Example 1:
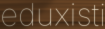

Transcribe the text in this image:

eduxisti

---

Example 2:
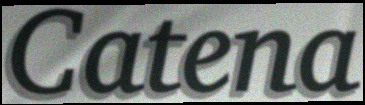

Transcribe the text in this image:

Catena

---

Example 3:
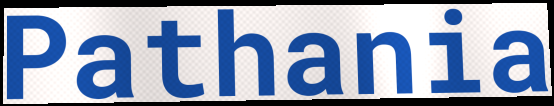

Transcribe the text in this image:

Pathania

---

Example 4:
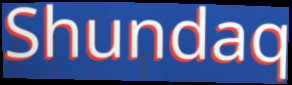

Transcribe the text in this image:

Shundaq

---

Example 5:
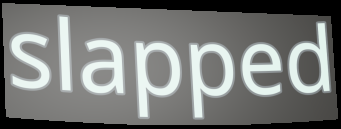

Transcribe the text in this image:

slapped